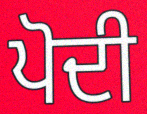
ਪੋਦੀ